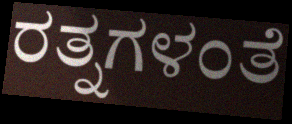
ರತ್ನಗಳಂತೆ